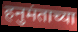
हनुमंताच्या